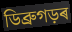
ডিব্ৰুগড়ৰ